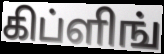
கிப்ளிங்